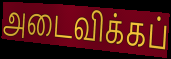
அடைவிக்கப்